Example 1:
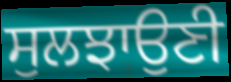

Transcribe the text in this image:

ਸੁਲਝਾਉਣੀ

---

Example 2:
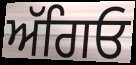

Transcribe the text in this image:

ਅੱਗਿਓ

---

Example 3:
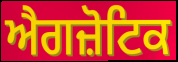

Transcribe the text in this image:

ਐਗਜ਼ੋਟਿਕ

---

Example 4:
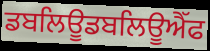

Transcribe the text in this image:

ਡਬਲਿਊਡਬਲਿਊਐੱਫ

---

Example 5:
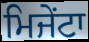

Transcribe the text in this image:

ਮਿਜੇਂਟਾ